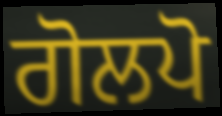
ਗੋਲਪੋ